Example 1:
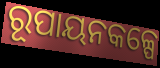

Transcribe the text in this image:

ରୂପାୟନକଳ୍ପେ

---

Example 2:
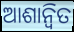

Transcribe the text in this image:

ଆଶାନ୍ବିତ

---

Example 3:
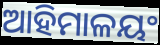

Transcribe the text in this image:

ଆହିମାଳୟଂ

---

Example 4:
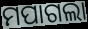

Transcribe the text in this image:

ମପାଗଲା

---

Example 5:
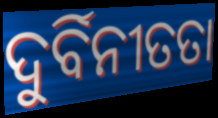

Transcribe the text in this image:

ଦୁର୍ବିନୀତତା